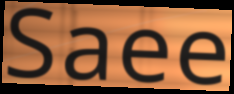
Saee